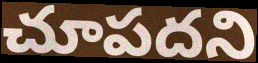
చూపదని